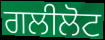
ਗਲੀਲੋਟ